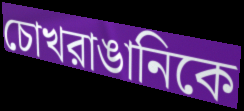
চোখরাঙানিকে